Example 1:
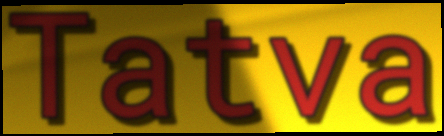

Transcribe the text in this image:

Tatva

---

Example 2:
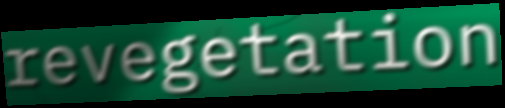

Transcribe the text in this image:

revegetation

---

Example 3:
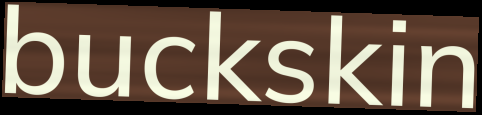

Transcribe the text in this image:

buckskin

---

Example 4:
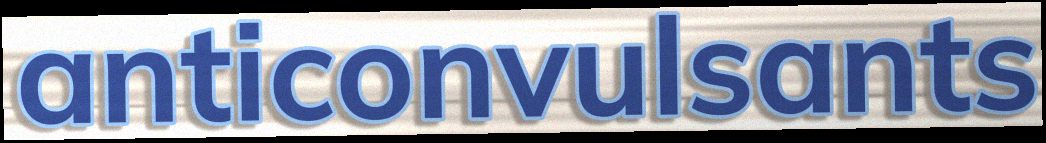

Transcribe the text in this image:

anticonvulsants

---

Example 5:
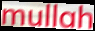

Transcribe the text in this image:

mullah